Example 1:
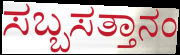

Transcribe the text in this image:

ಸಬ್ಬಸತ್ತಾನಂ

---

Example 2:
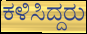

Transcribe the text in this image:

ಕಳಿಸಿದ್ದರು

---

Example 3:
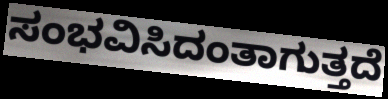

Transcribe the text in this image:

ಸಂಭವಿಸಿದಂತಾಗುತ್ತದೆ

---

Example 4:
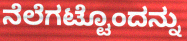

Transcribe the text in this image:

ನೆಲೆಗಟ್ಟೊಂದನ್ನು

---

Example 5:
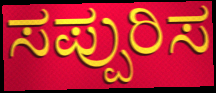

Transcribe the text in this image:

ಸಪ್ಪುರಿಸ